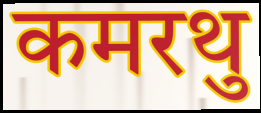
कमरथु